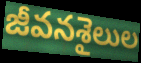
జీవనశైలుల